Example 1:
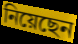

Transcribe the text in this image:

নিয়েছেন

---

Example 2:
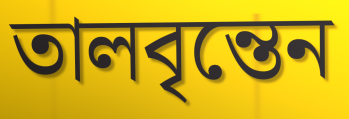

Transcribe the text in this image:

তালবৃন্তেন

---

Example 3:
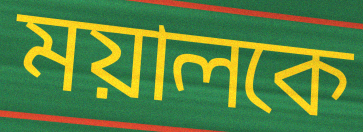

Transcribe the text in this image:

ময়ালকে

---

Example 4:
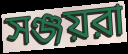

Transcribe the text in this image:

সঞ্জয়রা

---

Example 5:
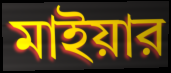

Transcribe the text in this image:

মাইয়ার